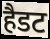
हैडट